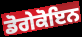
ਡੋਗੇਕੋਇਨ